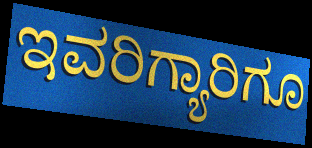
ಇವರಿಗ್ಯಾರಿಗೂ